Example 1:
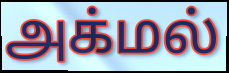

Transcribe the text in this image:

அக்மல்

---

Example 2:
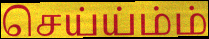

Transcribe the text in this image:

செய்ய்ம்ம்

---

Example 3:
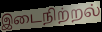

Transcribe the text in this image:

இடைநிற்றல்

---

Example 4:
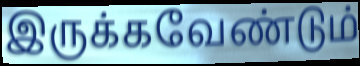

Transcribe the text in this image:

இருக்கவேண்டும்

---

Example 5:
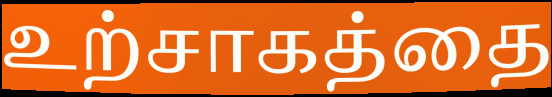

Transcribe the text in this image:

உற்சாகத்தை